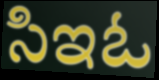
సిఇఓ